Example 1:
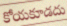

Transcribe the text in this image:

కోయకూడదు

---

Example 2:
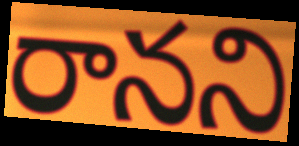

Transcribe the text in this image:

రానని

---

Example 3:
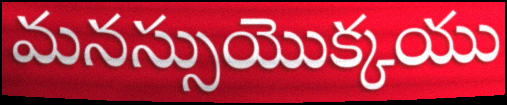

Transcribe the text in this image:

మనస్సుయొక్కయు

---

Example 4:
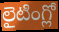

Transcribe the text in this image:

లైటింగ్లో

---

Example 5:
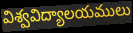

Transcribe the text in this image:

విశ్వవిద్యాలయములు